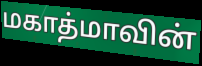
மகாத்மாவின்